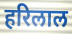
हरिलाल